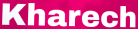
Kharech